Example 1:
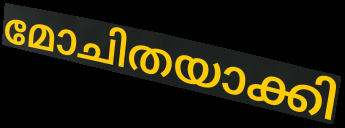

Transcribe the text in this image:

മോചിതയാക്കി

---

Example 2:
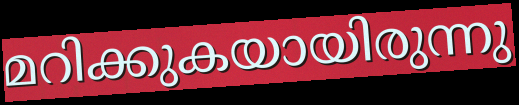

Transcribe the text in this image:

മറിക്കുകയായിരുന്നു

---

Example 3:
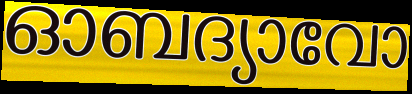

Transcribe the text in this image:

ഓബദ്യാവോ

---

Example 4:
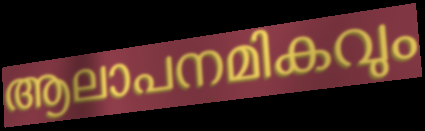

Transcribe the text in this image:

ആലാപനമികവും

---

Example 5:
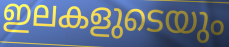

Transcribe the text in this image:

ഇലകളുടെയും